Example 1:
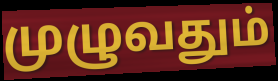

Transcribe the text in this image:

முழுவதும்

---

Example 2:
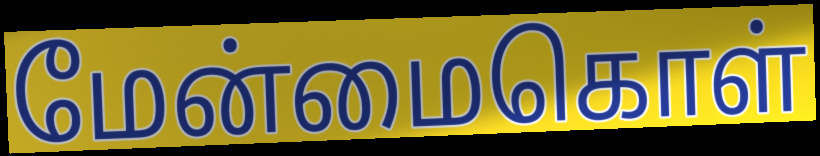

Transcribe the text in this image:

மேன்மைகொள்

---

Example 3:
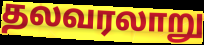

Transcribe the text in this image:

தலவரலாறு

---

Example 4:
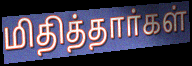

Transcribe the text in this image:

மிதித்தார்கள்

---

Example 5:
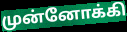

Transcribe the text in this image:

முன்னோக்கி